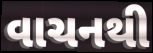
વાચનથી